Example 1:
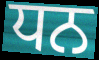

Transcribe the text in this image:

ਧਨ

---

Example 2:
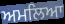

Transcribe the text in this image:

ਅਮਲਿਆ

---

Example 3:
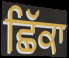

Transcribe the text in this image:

ਛਿੱਕਾ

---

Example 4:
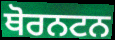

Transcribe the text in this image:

ਥੋਰਨਟਨ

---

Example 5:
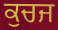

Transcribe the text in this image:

ਕੁਚਜ